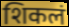
शिकलं